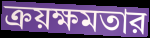
ক্রয়ক্ষমতার